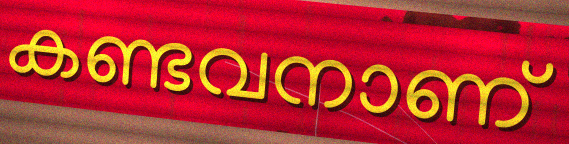
കണ്ടവനാണ്